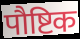
पौष्टिक